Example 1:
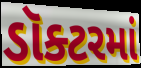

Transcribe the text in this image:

ડૉક્ટરમાં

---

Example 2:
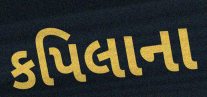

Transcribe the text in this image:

કપિલાના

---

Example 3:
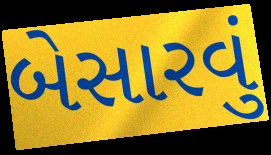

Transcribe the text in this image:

બેસારવું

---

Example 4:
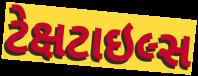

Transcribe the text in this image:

ટેક્ષટાઇલ્સ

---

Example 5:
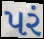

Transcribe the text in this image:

પરં